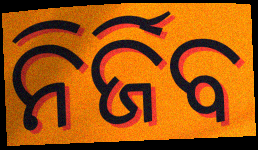
ନିର୍ଜିବ